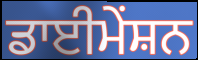
ਡਾਈਮੇਂਸ਼ਨ